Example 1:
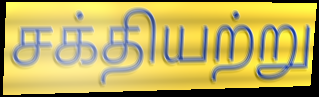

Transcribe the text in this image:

சக்தியற்று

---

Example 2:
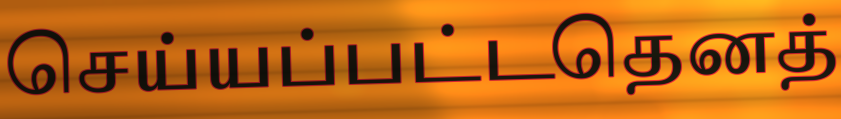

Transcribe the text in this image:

செய்யப்பட்டதெனத்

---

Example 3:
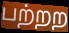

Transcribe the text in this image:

பற்றற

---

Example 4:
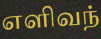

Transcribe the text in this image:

எளிவந்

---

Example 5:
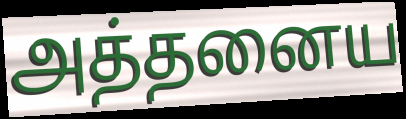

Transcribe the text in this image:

அத்தனைய